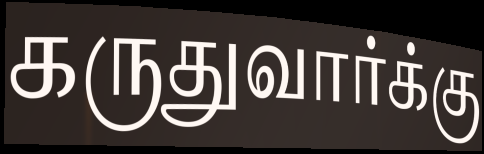
கருதுவார்க்கு